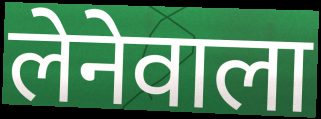
लेनेवाला